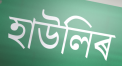
হাউলিৰ